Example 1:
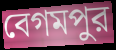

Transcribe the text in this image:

বেগমপুর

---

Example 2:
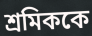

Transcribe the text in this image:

শ্রমিককে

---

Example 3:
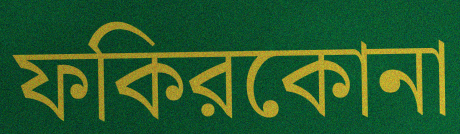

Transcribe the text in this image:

ফকিরকোনা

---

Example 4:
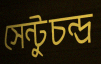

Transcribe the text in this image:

সেন্টুচন্দ্র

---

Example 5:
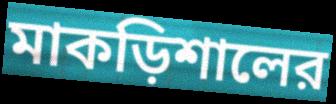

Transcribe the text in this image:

মাকড়িশালের